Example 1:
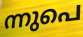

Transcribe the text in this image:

ന്നുപെ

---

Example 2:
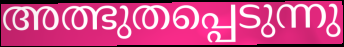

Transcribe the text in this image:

അത്ഭുതപ്പെടുന്നു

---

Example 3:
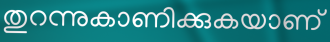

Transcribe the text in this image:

തുറന്നുകാണിക്കുകയാണ്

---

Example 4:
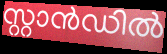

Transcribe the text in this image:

സ്റ്റാൻഡിൽ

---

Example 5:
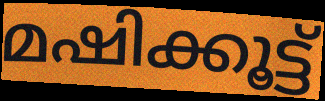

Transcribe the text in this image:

മഷിക്കൂട്ട്